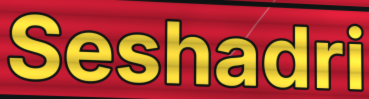
Seshadri